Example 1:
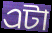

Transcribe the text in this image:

এটা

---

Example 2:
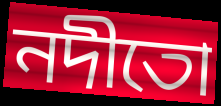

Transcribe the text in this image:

নদীতো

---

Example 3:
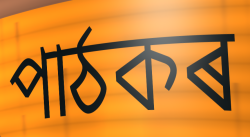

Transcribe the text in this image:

পাঠকৰ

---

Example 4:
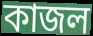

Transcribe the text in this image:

কাজল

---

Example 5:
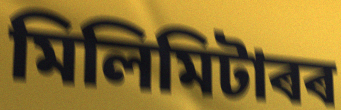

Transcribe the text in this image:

মিলিমিটাৰৰ